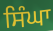
ਸਿੰਘਾ